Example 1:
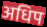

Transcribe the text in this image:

अधिप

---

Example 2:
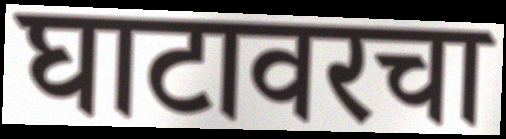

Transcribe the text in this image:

घाटावरचा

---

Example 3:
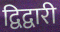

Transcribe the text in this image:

द्विद्वारी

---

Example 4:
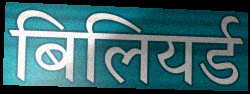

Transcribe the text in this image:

बिलियर्ड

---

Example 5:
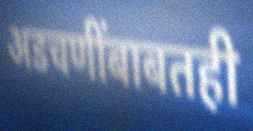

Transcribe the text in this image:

अडचणींबाबतही